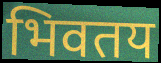
भिवतय